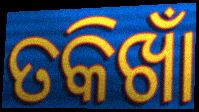
ତକିଖାଁ